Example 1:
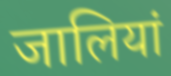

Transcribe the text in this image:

जालियां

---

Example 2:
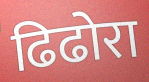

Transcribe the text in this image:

ढिढोरा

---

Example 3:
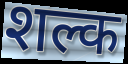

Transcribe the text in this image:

शल्क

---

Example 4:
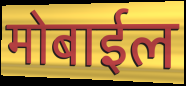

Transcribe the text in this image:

मोबाईल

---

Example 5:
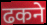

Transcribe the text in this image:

ढकने